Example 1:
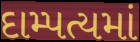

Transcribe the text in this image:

દામ્પત્યમાં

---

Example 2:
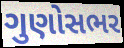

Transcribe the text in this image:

ગુણોસભર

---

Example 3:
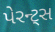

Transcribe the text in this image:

પેરન્ટ્સ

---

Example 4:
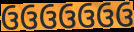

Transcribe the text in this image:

ઉઉઉઉઉઉઉ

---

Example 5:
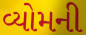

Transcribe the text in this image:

વ્યોમની